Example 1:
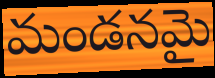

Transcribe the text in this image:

మండనమై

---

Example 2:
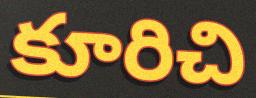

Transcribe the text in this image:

కూరిచి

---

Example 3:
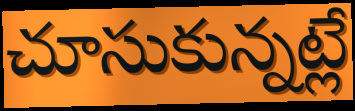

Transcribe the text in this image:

చూసుకున్నట్లే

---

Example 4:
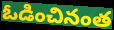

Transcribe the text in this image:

ఓడించినంత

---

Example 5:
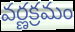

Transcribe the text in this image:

వర్ణక్రమం